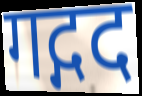
गद्गद